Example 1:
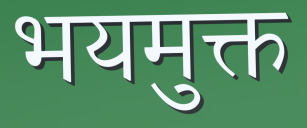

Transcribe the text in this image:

भयमुक्त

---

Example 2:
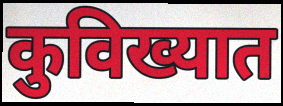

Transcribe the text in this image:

कुविख्यात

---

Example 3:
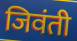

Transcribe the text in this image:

जिवंती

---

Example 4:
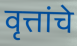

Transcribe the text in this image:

वृत्तांचे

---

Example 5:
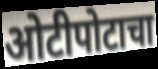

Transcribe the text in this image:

ओटीपोटाचा